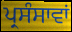
ਪ੍ਰਸੰਸਾਵਾਂ